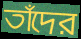
তাঁদের